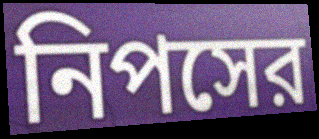
নিপসের